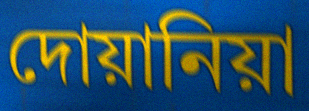
দোয়ানিয়া